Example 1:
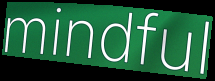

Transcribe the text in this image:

mindful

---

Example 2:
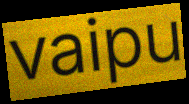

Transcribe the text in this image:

vaipu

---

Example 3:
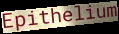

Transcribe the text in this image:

Epithelium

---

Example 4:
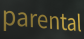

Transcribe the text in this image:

parental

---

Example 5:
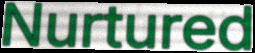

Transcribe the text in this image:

Nurtured